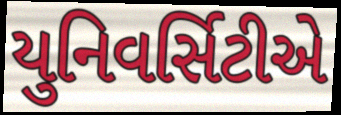
યુનિવર્સિટીએ